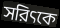
সরিৎকে